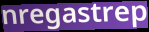
nregastrep